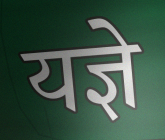
यज्ञे